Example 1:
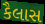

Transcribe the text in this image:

કૈલાસ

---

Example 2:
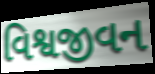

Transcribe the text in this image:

વિશ્વજીવન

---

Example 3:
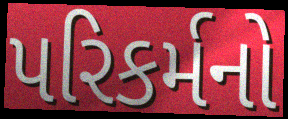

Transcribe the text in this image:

પરિકર્મનો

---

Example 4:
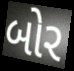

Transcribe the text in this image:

બોર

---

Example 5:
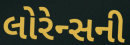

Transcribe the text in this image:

લોરેન્સની